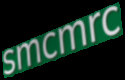
smcmrc